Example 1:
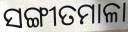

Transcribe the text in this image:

ସଙ୍ଗୀତମାଳା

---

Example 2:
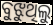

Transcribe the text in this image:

ବୁଝୁଥିଲୁ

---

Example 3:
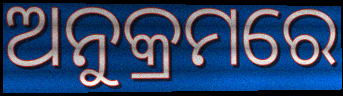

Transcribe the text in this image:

ଅନୁକ୍ରମରେ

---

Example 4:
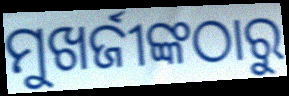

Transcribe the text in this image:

ମୁଖର୍ଜୀଙ୍କଠାରୁ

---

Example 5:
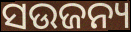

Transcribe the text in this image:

ସଉଜନ୍ୟ